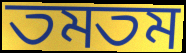
তমতম